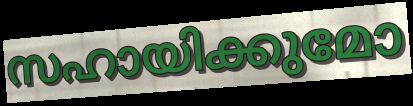
സഹായിക്കുമോ